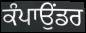
ਕੰਪਾਉਂਡਰ